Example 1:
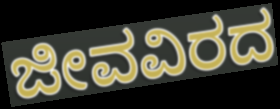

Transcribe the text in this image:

ಜೀವವಿರದ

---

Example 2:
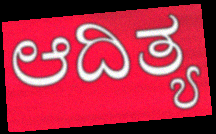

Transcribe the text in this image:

ಆದಿತ್ಯ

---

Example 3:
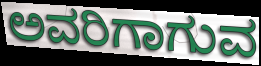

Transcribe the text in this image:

ಅವರಿಗಾಗುವ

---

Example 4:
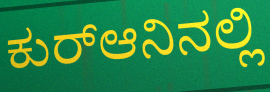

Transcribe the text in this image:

ಕುರ್‍ಆನಿನಲ್ಲಿ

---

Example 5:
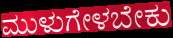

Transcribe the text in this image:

ಮುಳುಗೇಳಬೇಕು